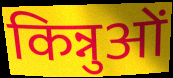
किन्नुओं